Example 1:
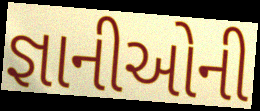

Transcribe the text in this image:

જ્ઞાનીઓની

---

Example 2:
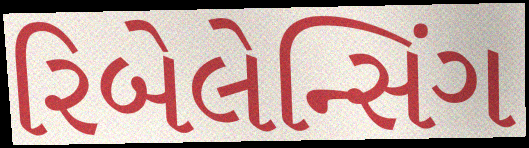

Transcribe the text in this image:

રિબેલેન્સિંગ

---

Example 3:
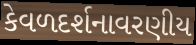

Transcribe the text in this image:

કેવળદર્શનાવરણીય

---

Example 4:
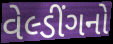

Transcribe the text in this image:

વેલ્ડીંગનો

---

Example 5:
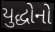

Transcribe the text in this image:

યુદ્ધોનો